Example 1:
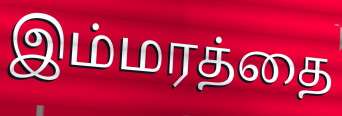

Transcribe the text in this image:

இம்மரத்தை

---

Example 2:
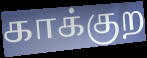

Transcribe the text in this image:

காக்குற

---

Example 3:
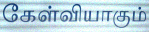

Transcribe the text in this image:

கேள்வியாகும்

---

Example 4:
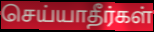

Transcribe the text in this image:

செய்யாதீர்கள்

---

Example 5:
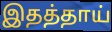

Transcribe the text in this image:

இதத்தாய்